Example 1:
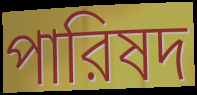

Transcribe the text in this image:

পারিষদ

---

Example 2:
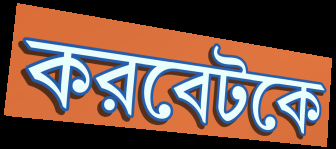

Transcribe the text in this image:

করবেটকে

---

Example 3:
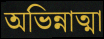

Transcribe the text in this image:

অভিন্নাত্মা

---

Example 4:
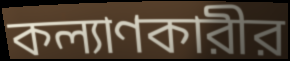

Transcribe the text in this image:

কল্যাণকারীর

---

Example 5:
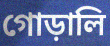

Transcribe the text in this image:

গোড়ালি